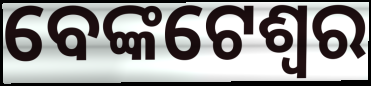
ବେଙ୍କଟେଶ୍ୱର